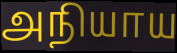
அநியாய